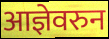
आज्ञेवरुन